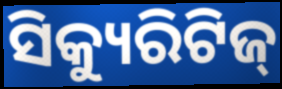
ସିକ୍ୟୁରିଟିଜ୍